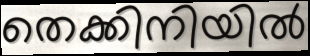
തെക്കിനിയിൽ